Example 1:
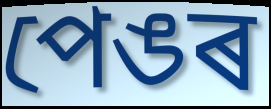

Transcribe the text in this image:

পেঙৰ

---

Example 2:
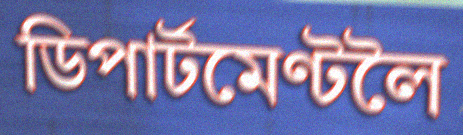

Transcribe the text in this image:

ডিপাৰ্টমেণ্টলৈ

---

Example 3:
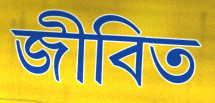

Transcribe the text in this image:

জীবিত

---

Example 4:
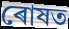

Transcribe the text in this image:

ৰোষত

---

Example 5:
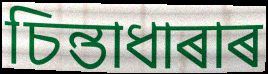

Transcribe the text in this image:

চিন্তাধাৰাৰ